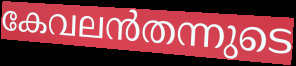
കേവലൻതന്നുടെ